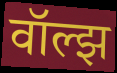
वॉल्झ